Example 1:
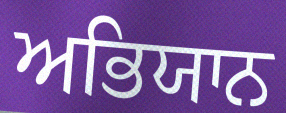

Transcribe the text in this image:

ਅਭਿਯਾਨ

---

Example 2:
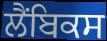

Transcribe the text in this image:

ਲੈਂਬਿਕਸ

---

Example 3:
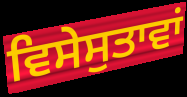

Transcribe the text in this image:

ਵਿਸੇਸੁਤਾਵਾਂ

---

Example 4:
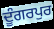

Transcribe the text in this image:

ਦੂੰਗਰਪੁਰ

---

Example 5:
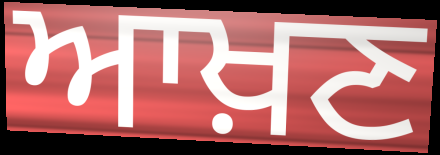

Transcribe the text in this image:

ਆਖ਼ਣ